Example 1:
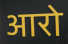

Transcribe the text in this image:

आरो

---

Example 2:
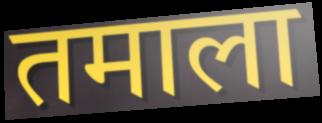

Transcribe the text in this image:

तमाला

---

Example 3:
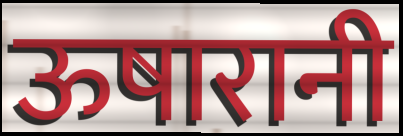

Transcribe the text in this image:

ऊषारानी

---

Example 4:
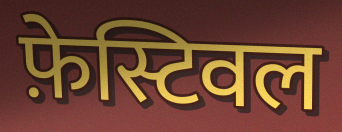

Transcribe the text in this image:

फ़ेस्टिवल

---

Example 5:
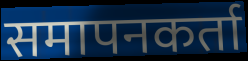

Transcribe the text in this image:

समापनकर्ता